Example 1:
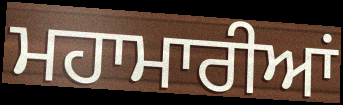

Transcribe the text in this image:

ਮਹਾਮਾਰੀਆਂ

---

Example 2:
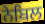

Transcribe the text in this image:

ਨੇਬਿਲ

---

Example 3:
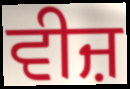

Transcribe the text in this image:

ਵੀਜ਼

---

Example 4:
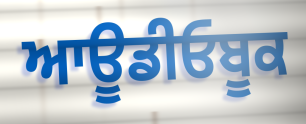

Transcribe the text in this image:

ਆਊਡੀਓਬੂਕ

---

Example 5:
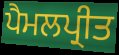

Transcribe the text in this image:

ਪੈਮਲਪ੍ਰੀਤ